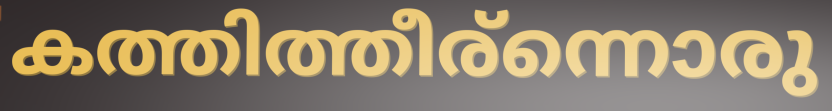
കത്തിത്തീര്ന്നൊരു